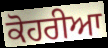
ਕੋਹਰੀਆ